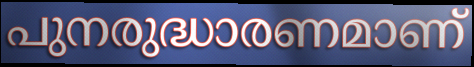
പുനരുദ്ധാരണമാണ്